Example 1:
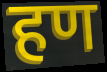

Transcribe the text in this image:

हण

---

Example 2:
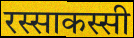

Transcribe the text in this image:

रस्साकस्सी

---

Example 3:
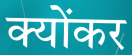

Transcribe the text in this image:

क्योंकर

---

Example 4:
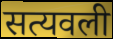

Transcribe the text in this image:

सत्यवली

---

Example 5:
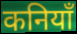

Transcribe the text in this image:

कनियाँ